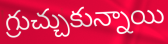
గ్రుచ్చుకున్నాయి